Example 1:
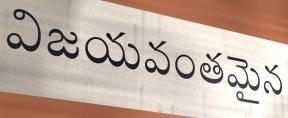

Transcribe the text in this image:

విజయవంతమైన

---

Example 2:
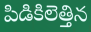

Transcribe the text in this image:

పిడికిలెత్తిన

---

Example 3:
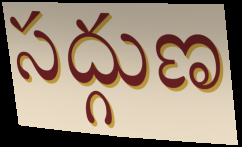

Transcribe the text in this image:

సద్గుణ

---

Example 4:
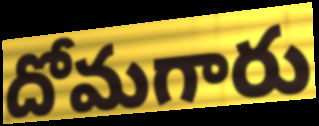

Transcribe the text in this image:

దోమగారు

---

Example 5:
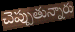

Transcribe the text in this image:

చెప్పుతున్నారు